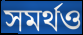
সমর্থও